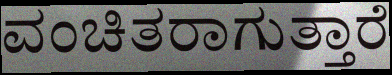
ವಂಚಿತರಾಗುತ್ತಾರೆ